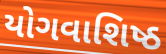
યોગવાશિષ્ઠ